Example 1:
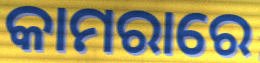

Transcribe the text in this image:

କାମରାରେ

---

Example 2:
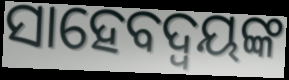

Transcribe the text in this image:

ସାହେବଦ୍ୱୟଙ୍କ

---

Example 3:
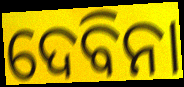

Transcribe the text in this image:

ଦେବିନା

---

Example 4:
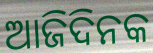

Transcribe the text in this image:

ଆଜିଦିନକ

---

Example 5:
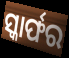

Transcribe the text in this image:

ସ୍କାର୍ଫର